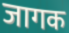
जागक